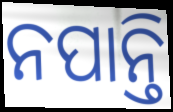
ନପାନ୍ତି